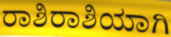
ರಾಶಿರಾಶಿಯಾಗಿ